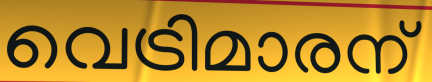
വെട്രിമാരന്